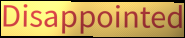
Disappointed